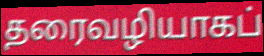
தரைவழியாகப்